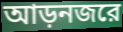
আড়নজরে